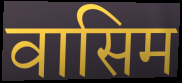
वासिम